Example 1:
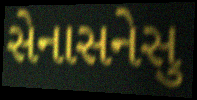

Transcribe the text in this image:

સેનાસનેસુ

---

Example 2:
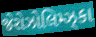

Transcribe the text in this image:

જેરોઝોલિમ્ઝ્કા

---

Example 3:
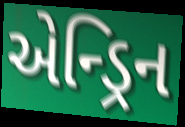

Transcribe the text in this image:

એન્ડ્રિન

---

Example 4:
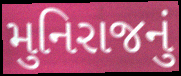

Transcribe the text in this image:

મુનિરાજનું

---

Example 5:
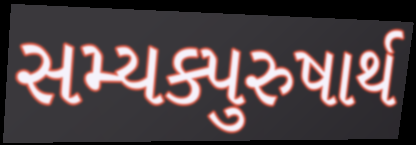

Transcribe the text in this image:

સમ્યક્પુરુષાર્થ